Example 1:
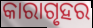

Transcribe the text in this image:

କାରାଗୃହର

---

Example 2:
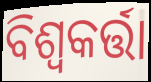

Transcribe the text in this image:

ବିଶ୍ୱକର୍ତ୍ତା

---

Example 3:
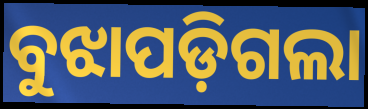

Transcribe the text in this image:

ବୁଝାପଡ଼ିଗଲା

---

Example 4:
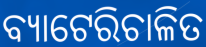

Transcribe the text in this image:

ବ୍ୟାଟେରିଚାଳିତ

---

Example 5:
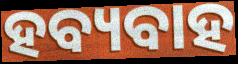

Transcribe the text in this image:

ହବ୍ୟବାହ